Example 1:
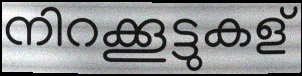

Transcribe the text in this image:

നിറക്കൂട്ടുകള്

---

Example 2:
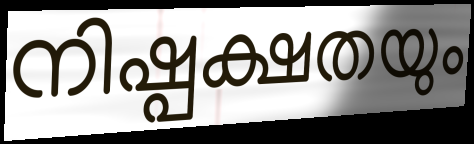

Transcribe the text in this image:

നിഷ്പക്ഷതയും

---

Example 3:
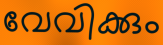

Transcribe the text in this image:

വേവിക്കും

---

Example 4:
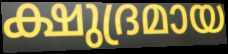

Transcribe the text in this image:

ക്ഷുദ്രമായ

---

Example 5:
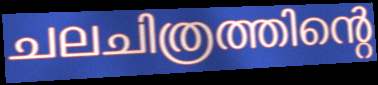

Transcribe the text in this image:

ചലചിത്രത്തിന്റെ